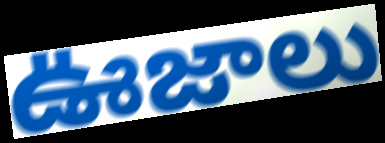
ఊజాలు